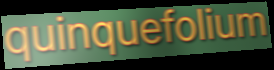
quinquefolium